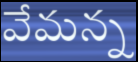
వేమన్న